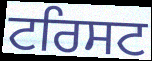
ਟਰਿਸਟ